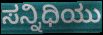
ಸನ್ನಿಧಿಯು